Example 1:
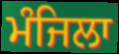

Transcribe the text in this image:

ਮੰਜਿਲਾ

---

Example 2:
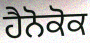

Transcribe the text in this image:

ਹੈਨੋਕੋਕ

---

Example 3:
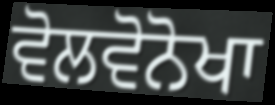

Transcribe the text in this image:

ਵੋਲਵੋਨੋਖਾ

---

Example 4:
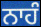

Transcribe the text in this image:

ਨਾਹੰ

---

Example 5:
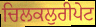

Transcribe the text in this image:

ਚਿਲਕਲੁਰੀਪੇਟ